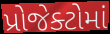
પ્રોજેક્ટોમાં